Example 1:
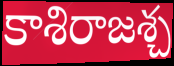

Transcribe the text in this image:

కాశిరాజశ్చ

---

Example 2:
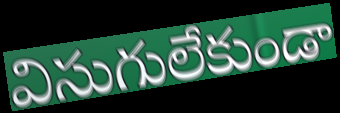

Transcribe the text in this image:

విసుగులేకుండా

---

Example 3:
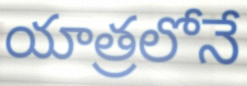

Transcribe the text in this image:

యాత్రలోనే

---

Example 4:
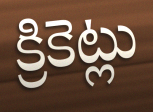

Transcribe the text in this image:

క్రికెట్లు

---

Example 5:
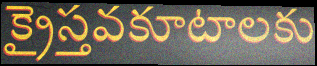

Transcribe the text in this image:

క్రైస్తవకూటాలకు